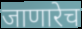
जाणारेच